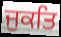
ਜੁਕਤਿ